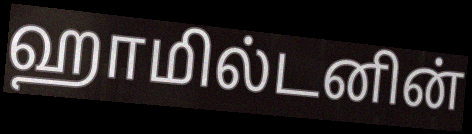
ஹாமில்டனின்